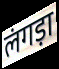
लंगड़ा